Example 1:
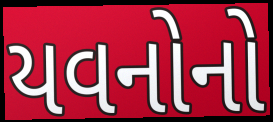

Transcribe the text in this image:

યવનોનો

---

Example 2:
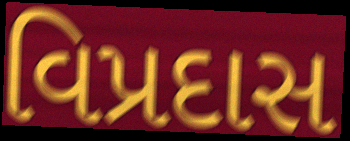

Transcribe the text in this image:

વિપ્રદાસ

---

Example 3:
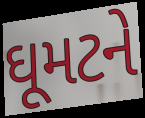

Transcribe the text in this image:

ઘૂમટને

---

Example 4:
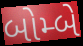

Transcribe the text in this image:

બોમ્બે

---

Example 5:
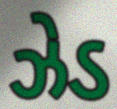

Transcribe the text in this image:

ઝેડ